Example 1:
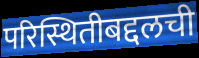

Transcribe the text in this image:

परिस्थितीबद्दलची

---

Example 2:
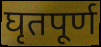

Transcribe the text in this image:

घृतपूर्ण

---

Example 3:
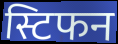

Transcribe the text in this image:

स्टिफन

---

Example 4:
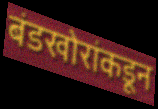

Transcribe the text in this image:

बंडखोरांकडून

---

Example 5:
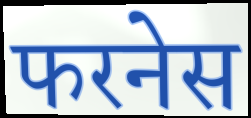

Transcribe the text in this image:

फरनेस